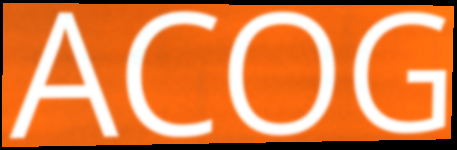
ACOG